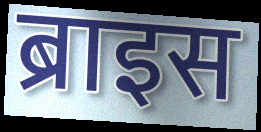
ब्राइस